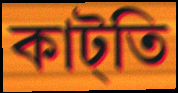
কাট্তি